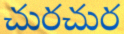
చురచుర